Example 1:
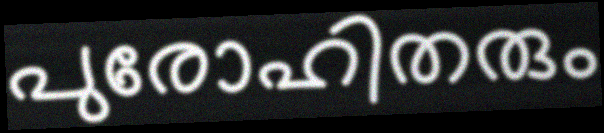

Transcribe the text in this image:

പുരോഹിതരും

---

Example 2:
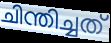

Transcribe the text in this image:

ചിന്തിച്ചത്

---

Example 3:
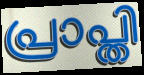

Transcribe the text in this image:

പ്രാപ്തി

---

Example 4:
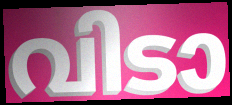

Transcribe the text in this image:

വിടാ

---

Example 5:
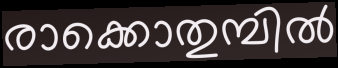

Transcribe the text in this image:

രാക്കൊതുമ്പിൽ